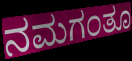
ನಮಗಂತೂ